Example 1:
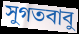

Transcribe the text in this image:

সুগতবাবু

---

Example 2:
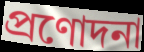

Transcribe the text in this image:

প্রণোদনা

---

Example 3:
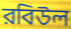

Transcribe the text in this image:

রবিউল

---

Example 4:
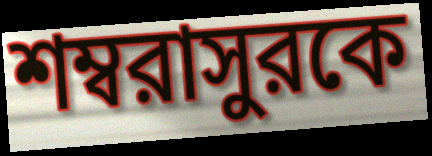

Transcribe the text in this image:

শম্বরাসুরকে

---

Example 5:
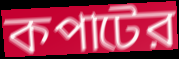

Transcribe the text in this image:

কপাটের